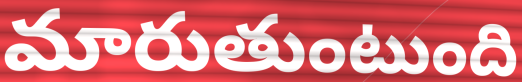
మారుతుంటుంది